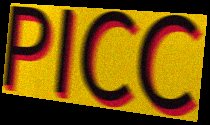
PICC